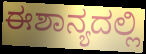
ಈಶಾನ್ಯದಲ್ಲಿ